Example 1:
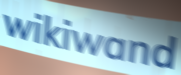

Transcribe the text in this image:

wikiwand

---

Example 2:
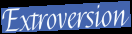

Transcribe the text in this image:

Extroversion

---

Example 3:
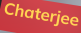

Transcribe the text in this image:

Chaterjee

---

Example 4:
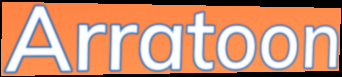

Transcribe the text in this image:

Arratoon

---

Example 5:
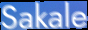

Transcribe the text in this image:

Sakale